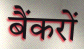
बैंकरों